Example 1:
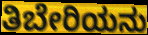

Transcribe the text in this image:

ತಿಬೇರಿಯನು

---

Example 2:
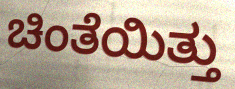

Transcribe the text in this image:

ಚಿಂತೆಯಿತ್ತು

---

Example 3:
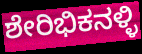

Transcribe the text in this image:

ಶೇರಿಭಿಕನಳ್ಳಿ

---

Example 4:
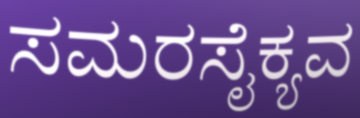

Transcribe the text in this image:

ಸಮರಸೈಕ್ಯವ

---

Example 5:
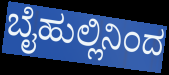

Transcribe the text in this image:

ಬೈಹುಲ್ಲಿನಿಂದ